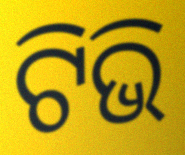
ଟିଭି